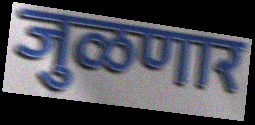
जुळणार